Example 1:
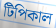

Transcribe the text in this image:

টিপিকাল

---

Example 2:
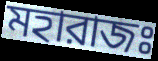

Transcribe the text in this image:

মহারাজঃ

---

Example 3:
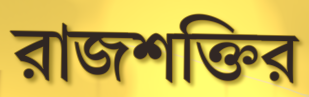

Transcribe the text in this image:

রাজশক্তির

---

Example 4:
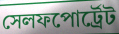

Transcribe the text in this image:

সেলফপোর্ট্রেট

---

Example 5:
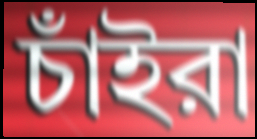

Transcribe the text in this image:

চাঁইরা